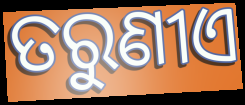
ତରୁଣୀଏ